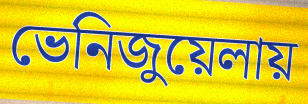
ভেনিজুয়েলায়